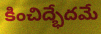
కించిద్భేదమే